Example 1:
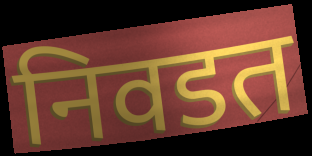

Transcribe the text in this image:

निवडत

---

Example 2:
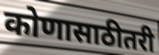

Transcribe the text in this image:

कोणासाठीतरी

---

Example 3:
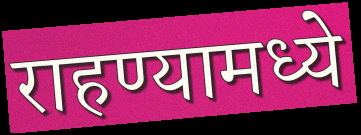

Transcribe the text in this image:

राहण्यामध्ये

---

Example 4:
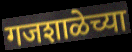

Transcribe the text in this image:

गजशाळेच्या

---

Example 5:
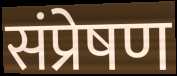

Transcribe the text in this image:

संप्रेषण